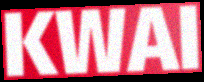
KWAI